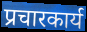
प्रचारकार्य